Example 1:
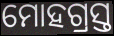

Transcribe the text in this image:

ମୋହଗ୍ରସ୍ତ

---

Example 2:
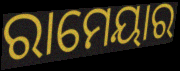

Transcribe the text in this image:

ରାମେୟାର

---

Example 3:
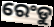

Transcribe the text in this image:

ରେଂଡୁ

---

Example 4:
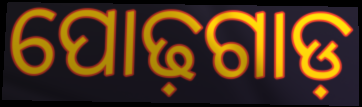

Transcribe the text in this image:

ପୋଢ଼ଗାଡ଼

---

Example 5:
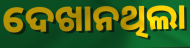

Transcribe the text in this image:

ଦେଖାନଥିଲା